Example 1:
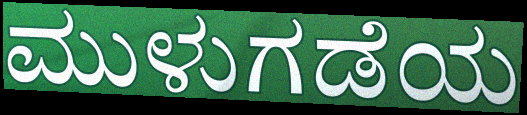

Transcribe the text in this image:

ಮುಳುಗಡೆಯ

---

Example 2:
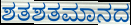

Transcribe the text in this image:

ಶತಶತಮಾನದ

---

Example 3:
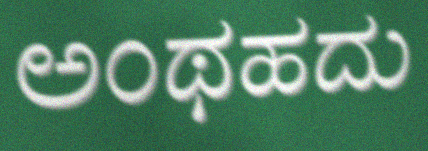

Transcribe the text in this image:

ಅಂಥಹದು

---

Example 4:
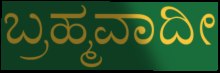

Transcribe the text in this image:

ಬ್ರಹ್ಮವಾದೀ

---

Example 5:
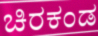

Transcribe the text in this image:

ಚಿರಕಂಡ